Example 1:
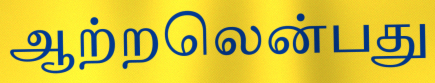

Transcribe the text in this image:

ஆற்றலென்பது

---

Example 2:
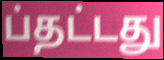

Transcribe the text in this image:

ப்தட்டது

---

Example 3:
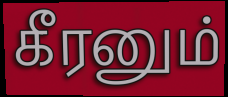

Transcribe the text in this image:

கீரனும்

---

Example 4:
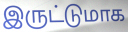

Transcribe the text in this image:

இருட்டுமாக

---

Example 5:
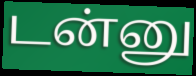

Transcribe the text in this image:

டன்னு